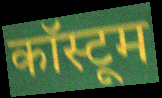
कॉस्टूम